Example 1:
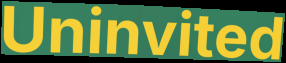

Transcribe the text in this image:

Uninvited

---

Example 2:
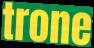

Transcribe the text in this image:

trone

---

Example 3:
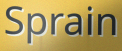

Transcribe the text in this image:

Sprain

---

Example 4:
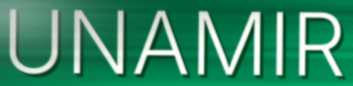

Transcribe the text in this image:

UNAMIR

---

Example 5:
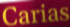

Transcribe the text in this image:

Carias